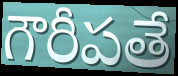
గౌరీపతే